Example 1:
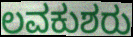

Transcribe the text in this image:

ಲವಕುಶರು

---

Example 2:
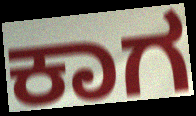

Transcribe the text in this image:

ಕಾಗ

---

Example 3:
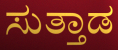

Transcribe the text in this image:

ಸುತ್ತಾಡ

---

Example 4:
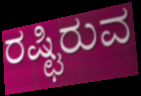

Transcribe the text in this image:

ರಷ್ಟಿರುವ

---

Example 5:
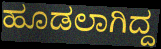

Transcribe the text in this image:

ಹೂಡಲಾಗಿದ್ದ